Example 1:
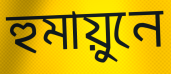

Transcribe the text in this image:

হুমায়ুনে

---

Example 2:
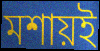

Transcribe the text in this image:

মশায়ই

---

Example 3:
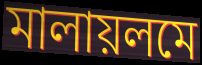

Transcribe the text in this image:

মালায়লমে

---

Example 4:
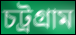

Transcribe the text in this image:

চট্রগ্রাম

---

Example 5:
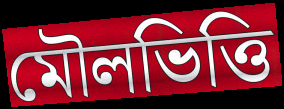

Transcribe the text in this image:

মৌলভিত্তি